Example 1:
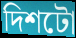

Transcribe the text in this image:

দিশটো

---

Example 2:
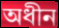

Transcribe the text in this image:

অধীন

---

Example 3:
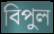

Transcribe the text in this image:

বিপুল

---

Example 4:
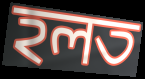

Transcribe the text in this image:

হলত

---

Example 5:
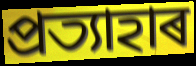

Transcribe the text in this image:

প্ৰত্যাহাৰ